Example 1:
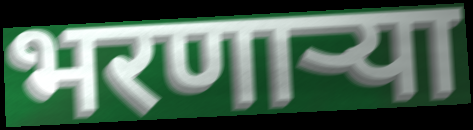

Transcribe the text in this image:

भरणाऱ्या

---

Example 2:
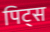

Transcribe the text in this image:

पिट्स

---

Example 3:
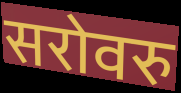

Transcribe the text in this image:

सरोवरु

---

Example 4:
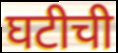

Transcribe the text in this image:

घटीची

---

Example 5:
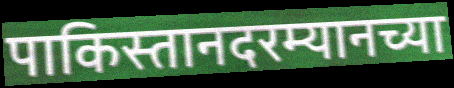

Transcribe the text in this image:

पाकिस्तानदरम्यानच्या